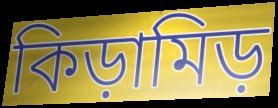
কিড়ামিড়